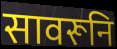
सावरूनि